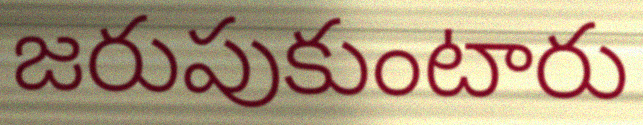
జరుపుకుంటారు